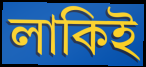
লাকিই